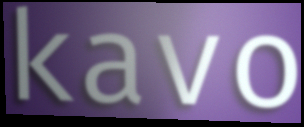
kavo